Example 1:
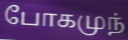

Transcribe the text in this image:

போகமுந்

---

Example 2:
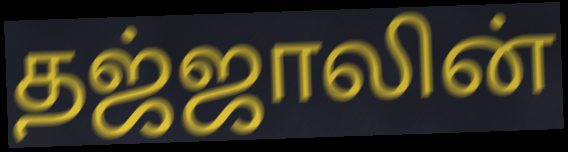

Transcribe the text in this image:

தஜ்ஜாலின்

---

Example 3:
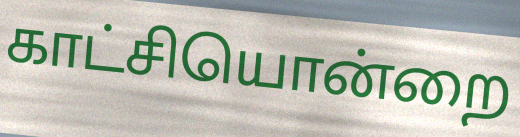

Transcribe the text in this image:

காட்சியொன்றை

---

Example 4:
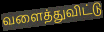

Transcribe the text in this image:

வளைத்துவிட்டு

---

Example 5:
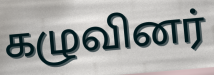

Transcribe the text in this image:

கழுவினர்